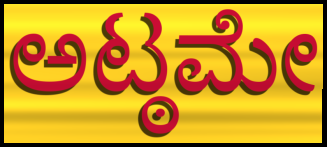
ಅಟ್ಠಮೇ